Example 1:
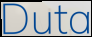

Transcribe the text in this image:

Duta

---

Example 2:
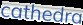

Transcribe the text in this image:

cathedra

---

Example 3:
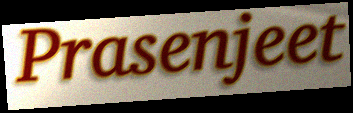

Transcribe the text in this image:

Prasenjeet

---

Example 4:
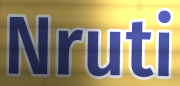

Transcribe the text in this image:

Nruti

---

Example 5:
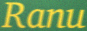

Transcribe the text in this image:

Ranu